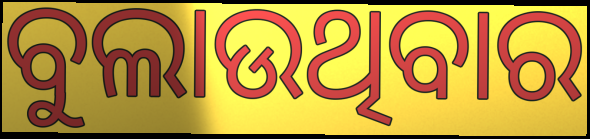
ବୁଲାଉଥିବାର